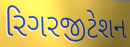
રિગરજીટેશન